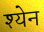
श्येन